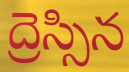
ద్రెస్సిన